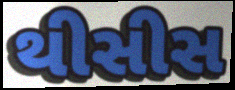
થીસીસ